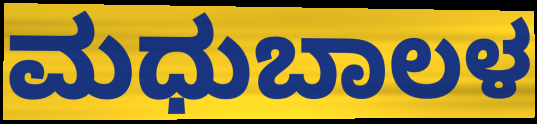
ಮಧುಬಾಲಳ